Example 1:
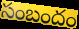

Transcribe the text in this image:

సంబందం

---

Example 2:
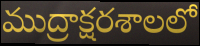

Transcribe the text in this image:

ముద్రాక్షరశాలలో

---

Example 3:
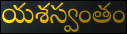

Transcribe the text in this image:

యశస్వంతం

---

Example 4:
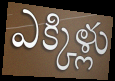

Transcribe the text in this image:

ఎక్కిళ్లు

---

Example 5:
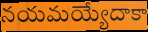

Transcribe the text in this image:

నయమయ్యేదాకా